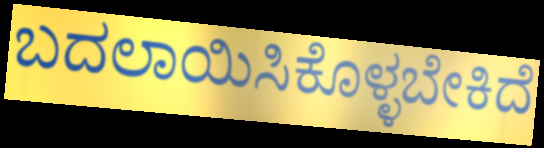
ಬದಲಾಯಿಸಿಕೊಳ್ಳಬೇಕಿದೆ